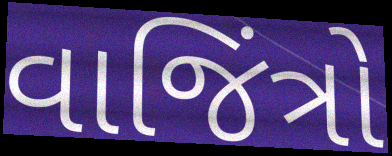
વાજિંત્રો